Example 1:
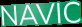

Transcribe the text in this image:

NAVIC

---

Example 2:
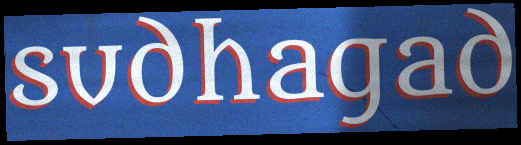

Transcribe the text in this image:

sudhagad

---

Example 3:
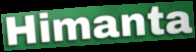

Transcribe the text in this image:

Himanta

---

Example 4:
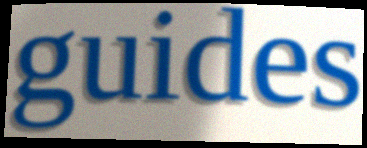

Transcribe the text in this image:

guides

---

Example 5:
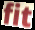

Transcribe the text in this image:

fit